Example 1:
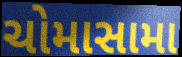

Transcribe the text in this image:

ચોમાસામા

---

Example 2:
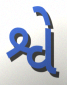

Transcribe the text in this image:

શ્વે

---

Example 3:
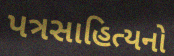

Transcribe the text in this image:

પત્રસાહિત્યનો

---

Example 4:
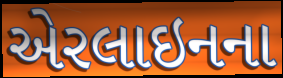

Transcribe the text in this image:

એરલાઇનના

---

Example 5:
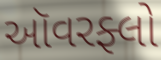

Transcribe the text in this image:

ઑવરફ્લો